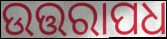
ଉତ୍ତରାପଧ